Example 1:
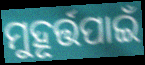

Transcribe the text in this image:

ମୁହୂର୍ତ୍ତପାଇଁ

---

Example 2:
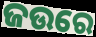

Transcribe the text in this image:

ଜଉରେ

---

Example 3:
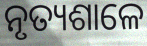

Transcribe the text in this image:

ନୃତ୍ୟଶାଳେ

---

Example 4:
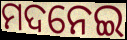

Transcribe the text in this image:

ମଦନେଇ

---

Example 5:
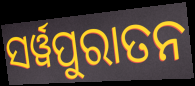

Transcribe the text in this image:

ସର୍ୱପୁରାତନ